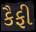
કૈફી